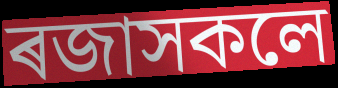
ৰজাসকলে